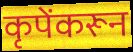
कृपेंकरून